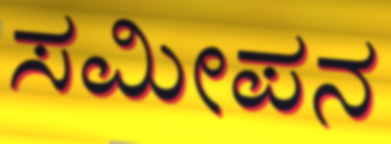
ಸಮೀಪನ